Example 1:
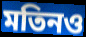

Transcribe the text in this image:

মতিনও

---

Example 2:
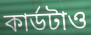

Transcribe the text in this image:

কার্ডটাও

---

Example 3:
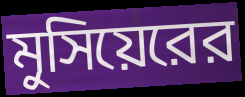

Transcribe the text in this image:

মুসিয়েরের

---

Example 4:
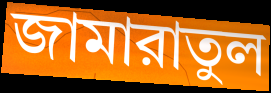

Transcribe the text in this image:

জামারাতুল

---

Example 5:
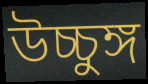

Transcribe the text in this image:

উচ্চুঙ্গ